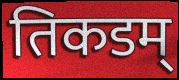
तिकडम्